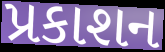
પ્રકાશન